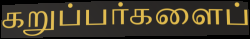
கறுப்பர்களைப்